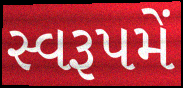
સ્વરૂપમેં